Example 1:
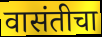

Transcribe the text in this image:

वासंतीचा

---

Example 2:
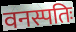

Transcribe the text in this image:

वनस्पतिः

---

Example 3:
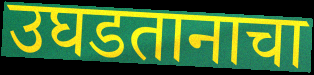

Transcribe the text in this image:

उघडतानाचा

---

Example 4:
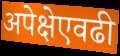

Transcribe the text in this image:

अपेक्षेएवढी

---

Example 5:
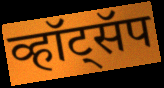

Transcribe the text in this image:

व्हॉट्सॅप